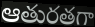
ఆతురతగా